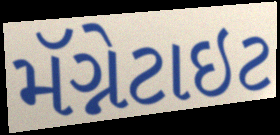
મૅગ્નેટાઇટ